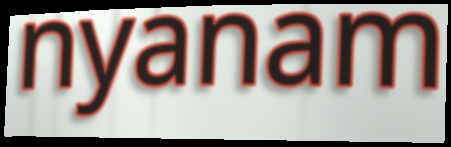
nyanam